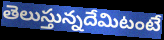
తెలుస్తున్నదేమిటంటే